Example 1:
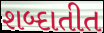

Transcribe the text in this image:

શબ્દાતીત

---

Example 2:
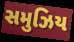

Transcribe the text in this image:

સમુઝિય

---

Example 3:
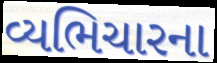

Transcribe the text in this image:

વ્યભિચારના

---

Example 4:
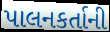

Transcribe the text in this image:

પાલનકર્તાની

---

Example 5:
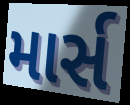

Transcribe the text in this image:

માર્સ